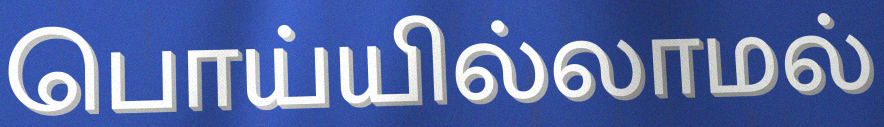
பொய்யில்லாமல்